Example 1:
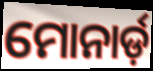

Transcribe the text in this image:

ମୋନାର୍ଡ଼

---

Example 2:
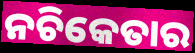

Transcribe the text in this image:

ନଚିକେତାର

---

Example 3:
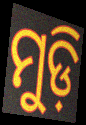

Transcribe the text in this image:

ମୁଡ଼ି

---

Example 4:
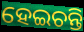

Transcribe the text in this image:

ହେଇଚନ୍ତି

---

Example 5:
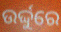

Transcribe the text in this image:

ଉର୍ଦ୍ଦୁରେ